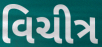
વિચીત્ર